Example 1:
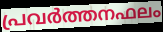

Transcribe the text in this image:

പ്രവർത്തനഫലം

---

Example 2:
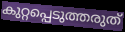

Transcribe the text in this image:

കുറ്റപ്പെടുത്തരുത്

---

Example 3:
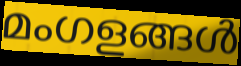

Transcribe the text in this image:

മംഗളങ്ങൾ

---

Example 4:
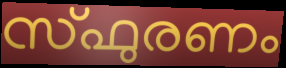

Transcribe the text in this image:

സ്ഫുരണം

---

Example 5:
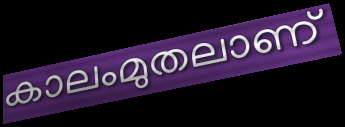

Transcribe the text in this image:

കാലംമുതലാണ്